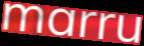
marru